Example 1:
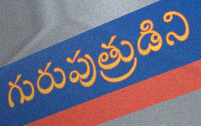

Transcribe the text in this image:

గురుపుత్రుడిని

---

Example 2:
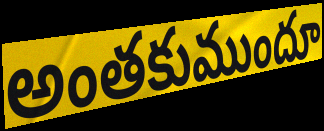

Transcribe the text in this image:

అంతకుముందూ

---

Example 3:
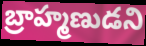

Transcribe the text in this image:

బ్రాహ్మణుడని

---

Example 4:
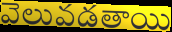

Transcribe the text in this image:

వెలువడతాయి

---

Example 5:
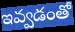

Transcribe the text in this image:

ఇవ్వడంతో